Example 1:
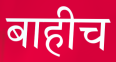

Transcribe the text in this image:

बाहीच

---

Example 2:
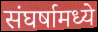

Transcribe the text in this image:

संघर्षामध्ये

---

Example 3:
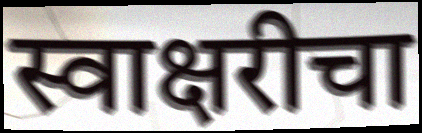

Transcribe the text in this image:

स्वाक्षरीचा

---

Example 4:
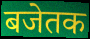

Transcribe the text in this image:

बजेतक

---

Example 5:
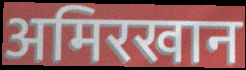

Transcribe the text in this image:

अमिरखान